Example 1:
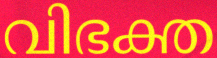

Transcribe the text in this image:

വിഭക്ത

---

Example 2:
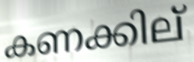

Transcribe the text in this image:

കണക്കില്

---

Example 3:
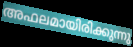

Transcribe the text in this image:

അഫലമായിരിക്കുന്നു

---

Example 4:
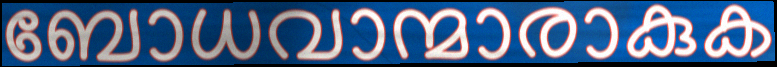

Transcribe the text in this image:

ബോധവാന്മാരാകുക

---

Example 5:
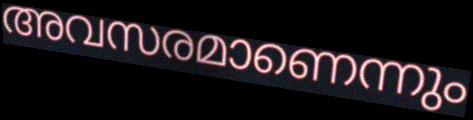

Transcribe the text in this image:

അവസരമാണെന്നും